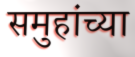
समुहांच्या